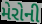
મેરોની